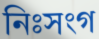
নিঃসংগ